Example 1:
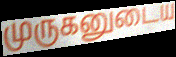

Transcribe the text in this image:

முருகனுடைய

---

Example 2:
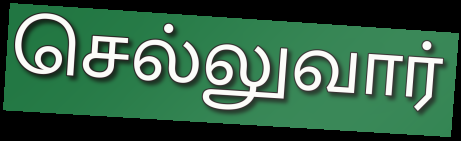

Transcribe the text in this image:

செல்லுவார்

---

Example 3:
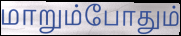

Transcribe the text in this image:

மாறும்போதும்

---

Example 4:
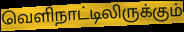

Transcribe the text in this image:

வெளிநாட்டிலிருக்கும்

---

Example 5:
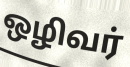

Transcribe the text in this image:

ஒழிவர்